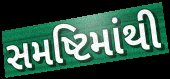
સમષ્ટિમાંથી